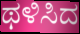
ಥಳಿಸಿದ